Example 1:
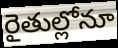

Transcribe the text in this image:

రైతుల్లోనూ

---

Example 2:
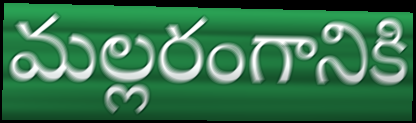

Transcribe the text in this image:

మల్లరంగానికి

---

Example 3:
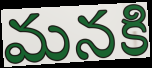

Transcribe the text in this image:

మనకి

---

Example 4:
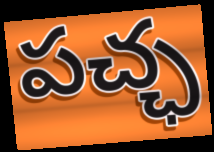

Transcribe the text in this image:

పచ్ఛ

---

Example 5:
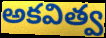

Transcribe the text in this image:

అకవిత్వ